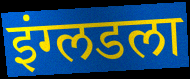
इंग्लडला